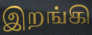
இறங்கி